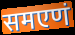
समएणं